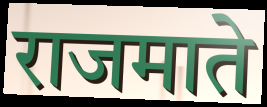
राजमाते